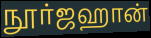
நூர்ஜஹான்